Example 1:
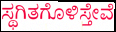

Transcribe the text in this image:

ಸ್ಥಗಿತಗೊಳಿಸ್ತೇವೆ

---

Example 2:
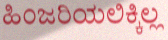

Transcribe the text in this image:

ಹಿಂಜರಿಯಲಿಕ್ಕಿಲ್ಲ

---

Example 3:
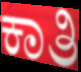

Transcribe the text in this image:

ಕಾತಿ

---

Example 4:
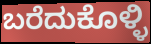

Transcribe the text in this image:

ಬರೆದುಕೊಳ್ಳಿ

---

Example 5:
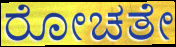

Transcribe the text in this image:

ರೋಚತೇ